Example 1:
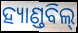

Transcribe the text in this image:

ହ୍ୟାଣ୍ଡବିଲ୍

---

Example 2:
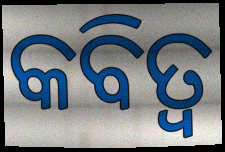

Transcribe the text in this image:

କବିତ୍ବ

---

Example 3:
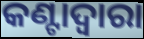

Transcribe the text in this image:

କଣ୍ଟାଦ୍ୱାରା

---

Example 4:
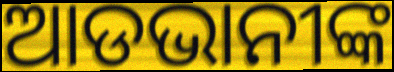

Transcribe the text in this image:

ଆଡଭାନୀଙ୍କ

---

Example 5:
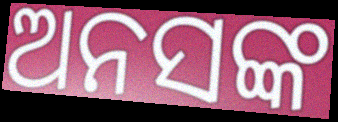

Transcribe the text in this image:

ଅନସଙ୍କ